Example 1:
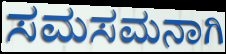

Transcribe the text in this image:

ಸಮಸಮನಾಗಿ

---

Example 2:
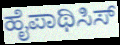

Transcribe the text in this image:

ಹೈಪಾಥಿಸಿಸ್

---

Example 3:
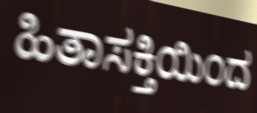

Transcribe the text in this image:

ಹಿತಾಸಕ್ತಿಯಿಂದ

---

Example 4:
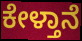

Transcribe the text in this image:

ಕೇಳ್ತಾನೆ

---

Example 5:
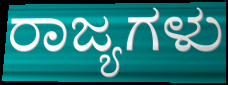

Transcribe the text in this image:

ರಾಜ್ಯಗಳು